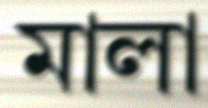
মালা